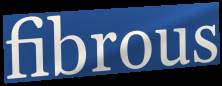
fibrous